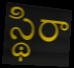
స్థిరా